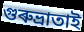
গুৰুভ্ৰাতাই